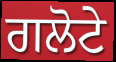
ਗਲੋਟੇ